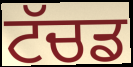
ਟੱਚਡ